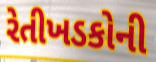
રેતીખડકોની